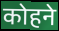
कोहने